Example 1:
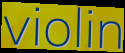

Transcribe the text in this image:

violin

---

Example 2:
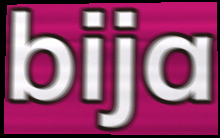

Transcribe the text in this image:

bija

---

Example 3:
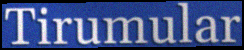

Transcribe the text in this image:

Tirumular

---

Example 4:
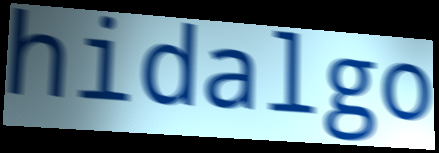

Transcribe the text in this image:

hidalgo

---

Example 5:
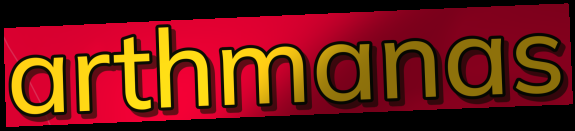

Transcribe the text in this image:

arthmanas